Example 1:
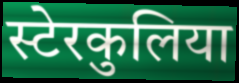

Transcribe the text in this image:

स्टेरकुलिया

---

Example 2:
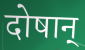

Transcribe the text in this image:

दोषान्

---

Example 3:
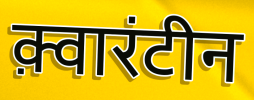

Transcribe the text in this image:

क़्वारंटीन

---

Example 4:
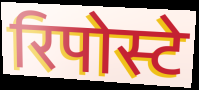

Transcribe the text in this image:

रिपोस्टे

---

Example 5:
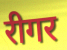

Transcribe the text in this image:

रीगर